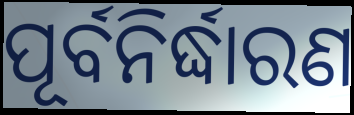
ପୂର୍ବନିର୍ଦ୍ଧାରଣ